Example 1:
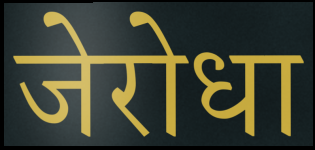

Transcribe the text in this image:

जेरोधा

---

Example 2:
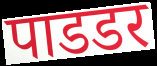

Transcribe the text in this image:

पाडडर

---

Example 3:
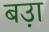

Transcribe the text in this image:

बउ़ा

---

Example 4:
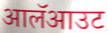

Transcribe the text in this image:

आलॅआउट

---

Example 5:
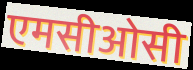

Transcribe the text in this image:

एमसीओसी